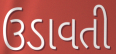
ઉડાવતી